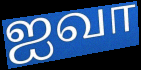
ஐவா